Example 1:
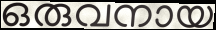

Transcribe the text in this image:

ഒരുവനായ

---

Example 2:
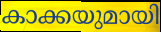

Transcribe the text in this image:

കാക്കയുമായി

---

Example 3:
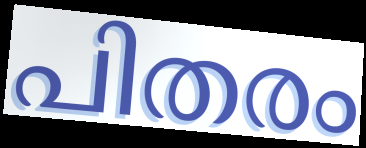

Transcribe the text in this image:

പിതരം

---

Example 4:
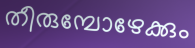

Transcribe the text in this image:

തീരുമ്പോഴേക്കും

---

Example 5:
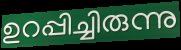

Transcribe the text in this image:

ഉറപ്പിച്ചിരുന്നു